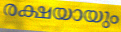
രക്ഷയായും